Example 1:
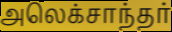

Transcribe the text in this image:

அலெக்சாந்தர்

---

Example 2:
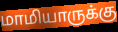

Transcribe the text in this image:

மாமியாருக்கு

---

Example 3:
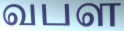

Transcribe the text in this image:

வபள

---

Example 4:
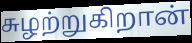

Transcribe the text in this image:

சுழற்றுகிறான்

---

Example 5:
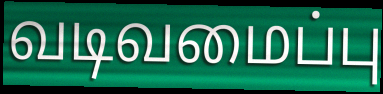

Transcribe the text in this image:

வடிவமைப்பு